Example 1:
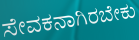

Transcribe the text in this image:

ಸೇವಕನಾಗಿರಬೇಕು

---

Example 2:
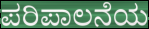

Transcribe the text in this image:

ಪರಿಪಾಲನೆಯ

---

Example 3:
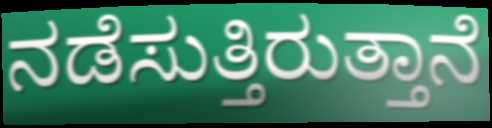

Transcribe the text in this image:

ನಡೆಸುತ್ತಿರುತ್ತಾನೆ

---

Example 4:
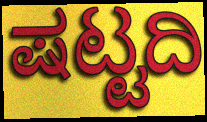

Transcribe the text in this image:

ಷಟ್ಟದಿ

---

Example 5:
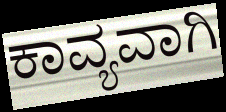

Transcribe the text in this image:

ಕಾವ್ಯವಾಗಿ